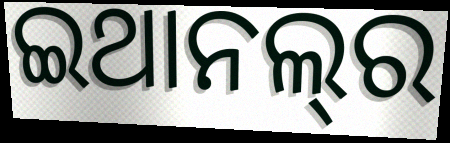
ଇଥାନଲ୍‌ର